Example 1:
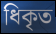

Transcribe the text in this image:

ধিকৃত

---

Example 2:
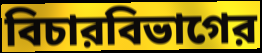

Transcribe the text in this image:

বিচারবিভাগের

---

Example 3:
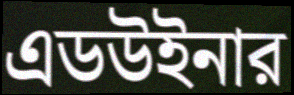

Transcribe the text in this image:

এডউইনার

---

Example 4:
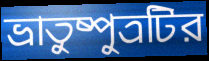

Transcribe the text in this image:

ভ্রাতুষ্পুত্রটির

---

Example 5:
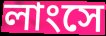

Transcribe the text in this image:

লাংসে